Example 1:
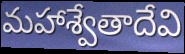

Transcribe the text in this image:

మహాశ్వేతాదేవి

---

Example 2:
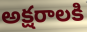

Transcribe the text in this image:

అక్షరాలకి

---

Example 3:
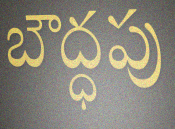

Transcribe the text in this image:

బౌద్ధపు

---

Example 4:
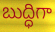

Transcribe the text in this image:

బుద్ధిగా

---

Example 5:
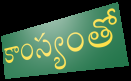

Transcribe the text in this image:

కాంస్యంతో